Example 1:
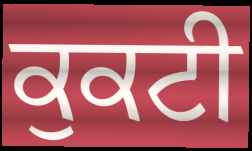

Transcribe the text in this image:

ਕੁਕਟੀ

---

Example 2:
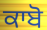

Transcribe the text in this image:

ਕਾਬੋ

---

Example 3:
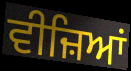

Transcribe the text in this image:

ਵੀਜ਼ਿਆਂ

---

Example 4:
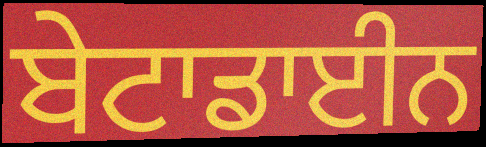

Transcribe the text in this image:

ਬੇਟਾਡਾਈਨ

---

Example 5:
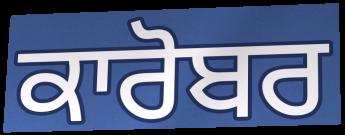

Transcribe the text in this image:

ਕਾਰੋਬਰ